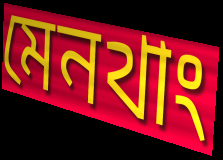
মেনথাং